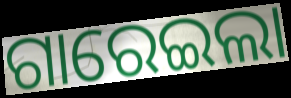
ଗାରେଇଲା